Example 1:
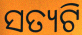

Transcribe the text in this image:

ସତ୍ୟଟି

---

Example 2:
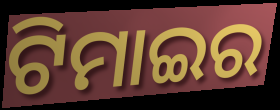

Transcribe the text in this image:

ଟିମାଇର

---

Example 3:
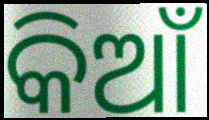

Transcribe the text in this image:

କିଆଁ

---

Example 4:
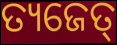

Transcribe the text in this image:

ତ୍ଯଜେତ୍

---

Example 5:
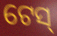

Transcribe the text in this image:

ଟେସ୍